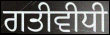
ਗਤੀਵੀਧੀ